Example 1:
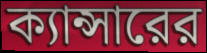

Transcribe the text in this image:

ক্যান্সারের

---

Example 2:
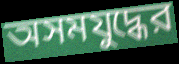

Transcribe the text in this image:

অসমযুদ্ধের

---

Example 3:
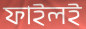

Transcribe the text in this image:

ফাইলই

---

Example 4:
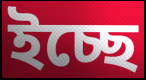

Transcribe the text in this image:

ইচ্ছে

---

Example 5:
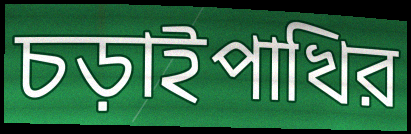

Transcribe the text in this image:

চড়াইপাখির